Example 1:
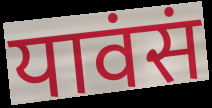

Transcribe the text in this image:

यावंसं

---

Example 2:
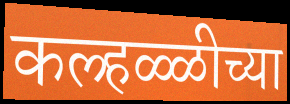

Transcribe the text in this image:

कल्हळ्ळीच्या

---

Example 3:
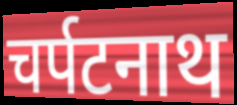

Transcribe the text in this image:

चर्पटनाथ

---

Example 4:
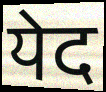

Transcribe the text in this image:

येद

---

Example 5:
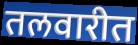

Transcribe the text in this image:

तलवारीत